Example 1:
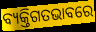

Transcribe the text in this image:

ବ୍ୟକ୍ତିଗତଭାବରେ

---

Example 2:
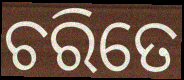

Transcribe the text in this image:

ଚରିତେ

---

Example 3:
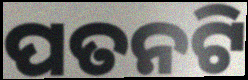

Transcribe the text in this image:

ପତନଟି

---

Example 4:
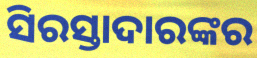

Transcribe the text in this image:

ସିରସ୍ତାଦାରଙ୍କର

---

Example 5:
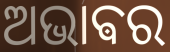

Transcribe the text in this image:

ଅଭାଵର